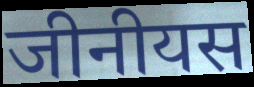
जीनीयस